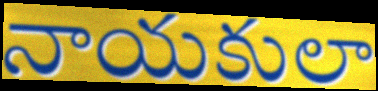
నాయకులా